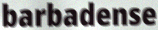
barbadense